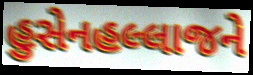
હુસેનહલ્લાજને